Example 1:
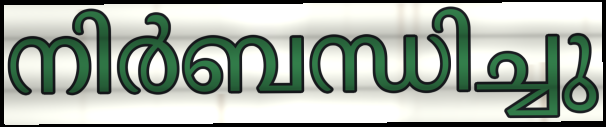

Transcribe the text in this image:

നിർബന്ധിച്ചു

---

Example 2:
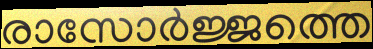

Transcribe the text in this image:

രാസോർജ്ജത്തെ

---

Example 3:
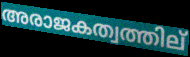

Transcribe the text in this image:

അരാജകത്വത്തില്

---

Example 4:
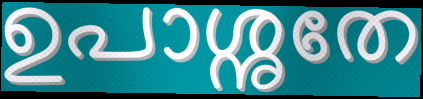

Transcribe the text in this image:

ഉപാശ്നുതേ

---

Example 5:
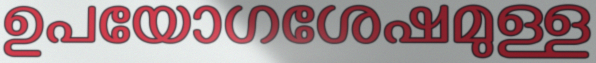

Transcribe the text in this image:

ഉപയോഗശേഷമുള്ള